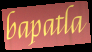
bapatla